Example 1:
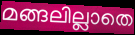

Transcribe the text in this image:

മങ്ങലില്ലാതെ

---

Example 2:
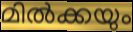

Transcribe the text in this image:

മിൽക്കയും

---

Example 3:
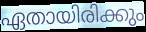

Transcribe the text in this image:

ഏതായിരിക്കും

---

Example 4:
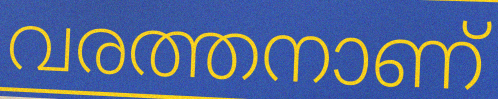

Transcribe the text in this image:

വരത്തനാണ്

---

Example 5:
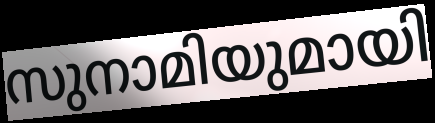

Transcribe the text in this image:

സുനാമിയുമായി